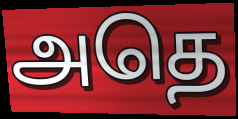
அதெ